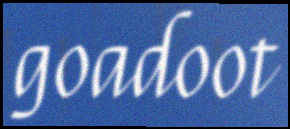
goadoot